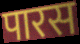
पारस